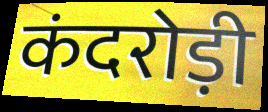
कंदरोड़ी